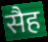
सैह